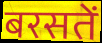
बरसतें